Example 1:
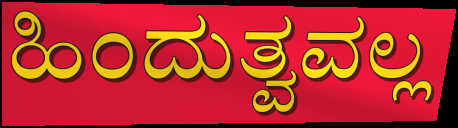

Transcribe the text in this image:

ಹಿಂದುತ್ವವಲ್ಲ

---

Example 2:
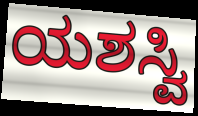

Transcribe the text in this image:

ಯಶಸ್ವಿ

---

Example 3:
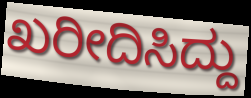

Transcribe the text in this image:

ಖರೀದಿಸಿದ್ದು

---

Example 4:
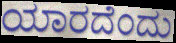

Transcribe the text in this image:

ಯಾರದೆಂದು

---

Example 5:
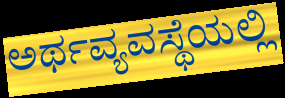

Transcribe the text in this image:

ಅರ್ಥವ್ಯವಸ್ಥೆಯಲ್ಲಿ